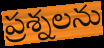
ప్రశ్నలను